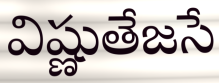
విష్ణుతేజసే